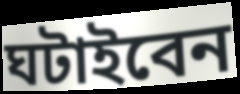
ঘটাইবেন